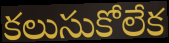
కలుసుకోలేక